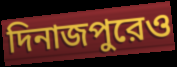
দিনাজপুরেও